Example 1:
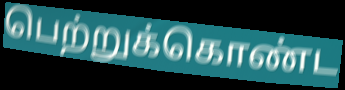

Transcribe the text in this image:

பெற்றுக்கொண்ட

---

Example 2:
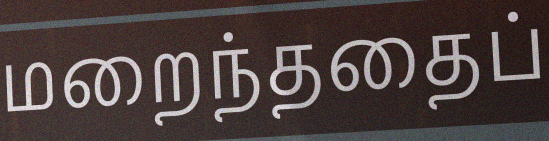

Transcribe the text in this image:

மறைந்ததைப்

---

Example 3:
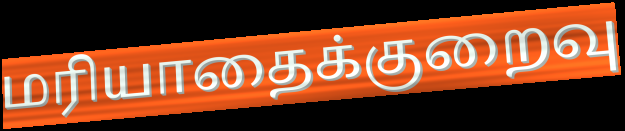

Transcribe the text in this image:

மரியாதைக்குறைவு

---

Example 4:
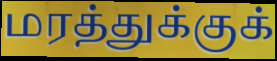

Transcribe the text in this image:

மரத்துக்குக்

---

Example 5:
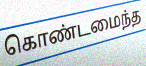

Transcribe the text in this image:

கொண்டமைந்த